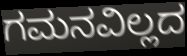
ಗಮನವಿಲ್ಲದ